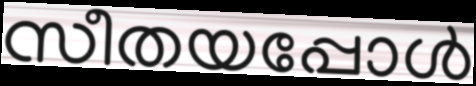
സീതയപ്പോൾ